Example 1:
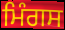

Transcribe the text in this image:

ਮਿੰਗਸ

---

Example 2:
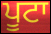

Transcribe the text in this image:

ਪੂਟਾ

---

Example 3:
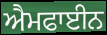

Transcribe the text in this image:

ਐਮਫਾਈਨ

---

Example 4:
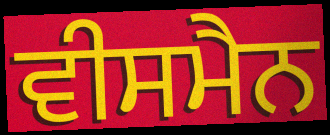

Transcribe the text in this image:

ਵੀਸਮੈਨ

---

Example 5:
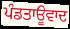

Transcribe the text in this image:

ਪੰਡਤਾਊਵਾਦ